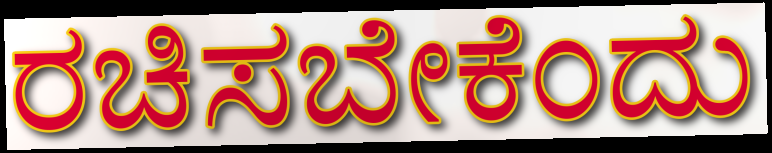
ರಚಿಸಬೇಕೆಂದು